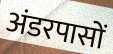
अंडरपासों